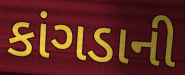
કાંગડાની